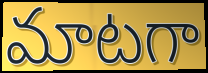
మాటగా